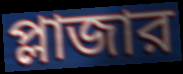
প্লাজার